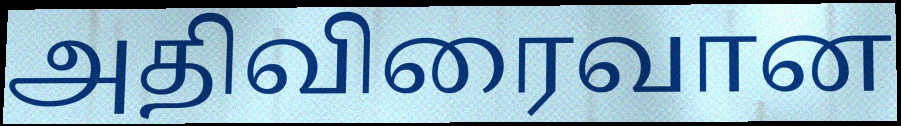
அதிவிரைவான